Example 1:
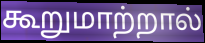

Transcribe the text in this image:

கூறுமாற்றால்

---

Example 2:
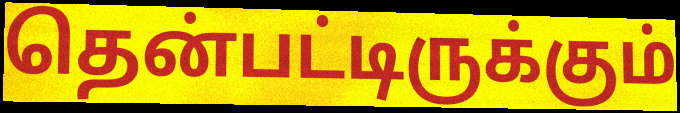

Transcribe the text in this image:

தென்பட்டிருக்கும்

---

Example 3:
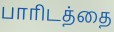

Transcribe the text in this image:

பாரிடத்தை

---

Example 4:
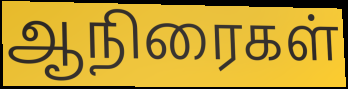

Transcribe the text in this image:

ஆநிரைகள்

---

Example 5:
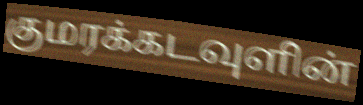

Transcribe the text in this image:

குமரக்கடவுளின்